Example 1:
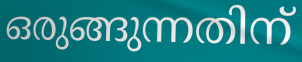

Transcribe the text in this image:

ഒരുങ്ങുന്നതിന്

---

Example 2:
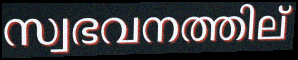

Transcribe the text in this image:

സ്വഭവനത്തില്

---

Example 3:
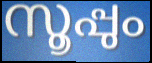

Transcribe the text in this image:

സൂപ്പും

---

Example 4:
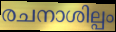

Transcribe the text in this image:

രചനാശില്പം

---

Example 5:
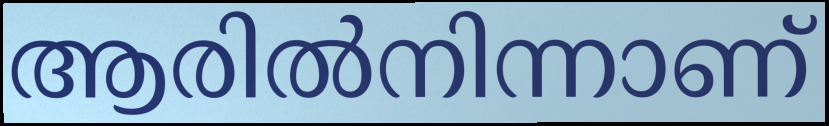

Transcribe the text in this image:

ആരിൽനിന്നാണ്